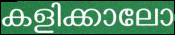
കളിക്കാലോ